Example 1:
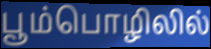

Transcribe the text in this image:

பூம்பொழிலில்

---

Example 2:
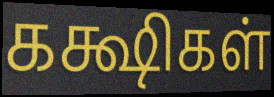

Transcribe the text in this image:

கக்ஷிகள்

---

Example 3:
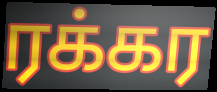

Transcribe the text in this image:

ரக்கர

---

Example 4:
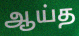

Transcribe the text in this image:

ஆய்த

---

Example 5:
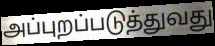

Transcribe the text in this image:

அப்புறப்படுத்துவது